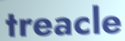
treacle